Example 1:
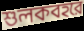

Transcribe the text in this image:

শুলকবহরে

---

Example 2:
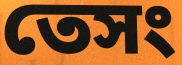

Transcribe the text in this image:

তেসং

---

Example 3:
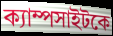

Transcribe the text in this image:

ক্যাম্পসাইটকে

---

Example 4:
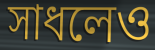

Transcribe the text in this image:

সাধলেও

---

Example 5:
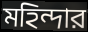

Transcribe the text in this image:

মহিন্দার